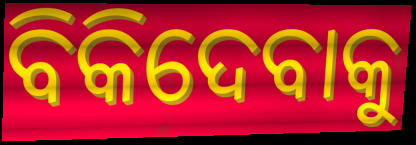
ବିକିଦେବାକୁ